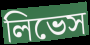
লিভেস